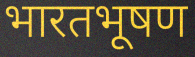
भारतभूषण